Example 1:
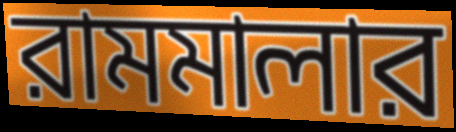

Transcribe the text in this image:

রামমালার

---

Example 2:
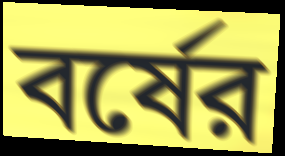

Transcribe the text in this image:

বর্ষের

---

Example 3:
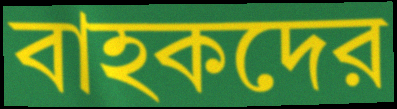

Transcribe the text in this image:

বাহকদের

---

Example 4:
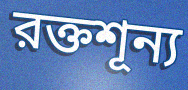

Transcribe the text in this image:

রক্তশূন্য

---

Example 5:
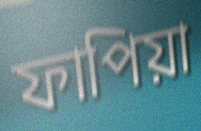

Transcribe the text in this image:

ফাপিয়া